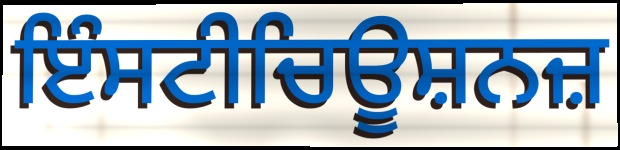
ਇੰਸਟੀਚਿਊਸ਼ਨਜ਼